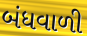
બંધવાળી